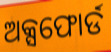
ଅକ୍ସଫୋର୍ଡ